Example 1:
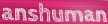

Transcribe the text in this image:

anshuman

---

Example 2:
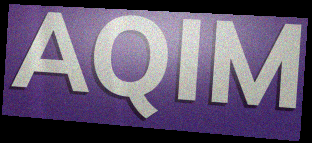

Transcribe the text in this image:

AQIM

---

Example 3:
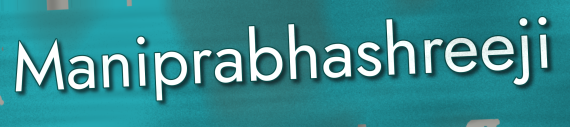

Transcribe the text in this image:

Maniprabhashreeji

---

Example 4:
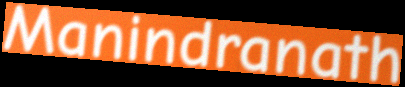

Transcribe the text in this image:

Manindranath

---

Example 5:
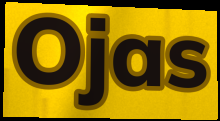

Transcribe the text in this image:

Ojas